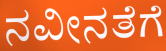
ನವೀನತೆಗೆ